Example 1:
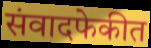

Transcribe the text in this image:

संवादफेकीत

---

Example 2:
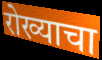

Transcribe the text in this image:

रोख्याचा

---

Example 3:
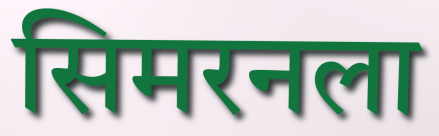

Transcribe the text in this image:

सिमरनला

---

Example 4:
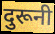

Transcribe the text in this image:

दुरूनी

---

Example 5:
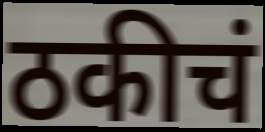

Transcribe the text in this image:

ठकीचं